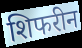
शिफरीन